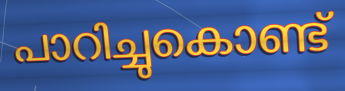
പാറിച്ചുകൊണ്ട്